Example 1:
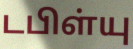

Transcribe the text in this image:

டபிள்யு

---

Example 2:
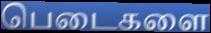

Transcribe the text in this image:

பெடைகளை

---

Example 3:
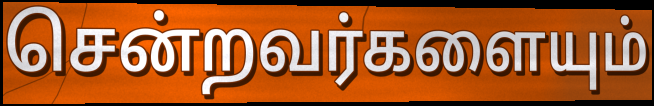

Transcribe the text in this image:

சென்றவர்களையும்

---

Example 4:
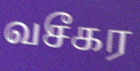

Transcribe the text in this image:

வசீகர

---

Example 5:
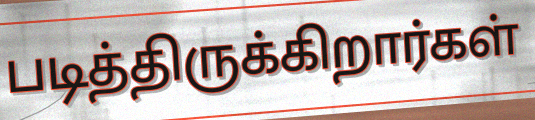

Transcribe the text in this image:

படித்திருக்கிறார்கள்